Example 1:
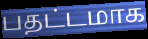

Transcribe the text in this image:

பதட்டமாக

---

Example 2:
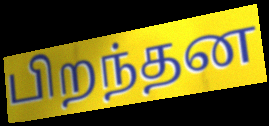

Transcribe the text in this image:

பிறந்தன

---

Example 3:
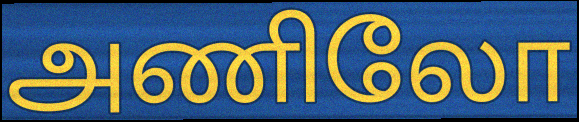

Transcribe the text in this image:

அணிலோ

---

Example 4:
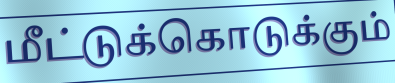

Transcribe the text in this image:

மீட்டுக்கொடுக்கும்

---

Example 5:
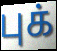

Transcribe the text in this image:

புக்